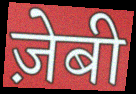
ज़ेबी